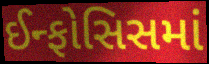
ઈન્ફોસિસમાં